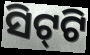
ସିଟ୍‌ଟି